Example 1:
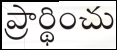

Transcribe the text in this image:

ప్రార్థించు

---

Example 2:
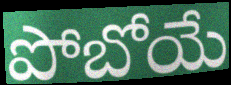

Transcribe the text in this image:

పోబోయే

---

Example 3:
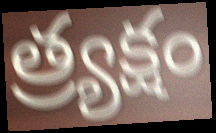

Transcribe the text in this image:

త్ర్యక్షం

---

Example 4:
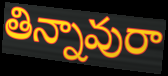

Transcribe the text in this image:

తిన్నావురా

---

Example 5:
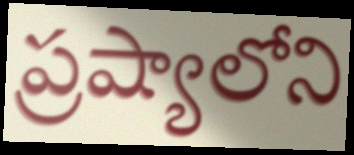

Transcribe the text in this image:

ప్రష్యాలోని